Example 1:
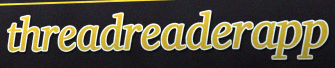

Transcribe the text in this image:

threadreaderapp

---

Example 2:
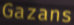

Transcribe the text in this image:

Gazans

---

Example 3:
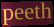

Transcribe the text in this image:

peeth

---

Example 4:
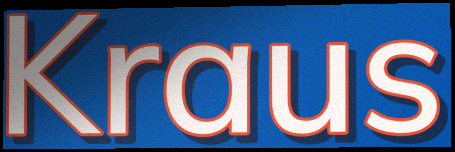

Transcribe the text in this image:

Kraus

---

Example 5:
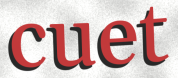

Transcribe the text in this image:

cuet